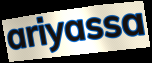
ariyassa